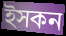
ইসকন